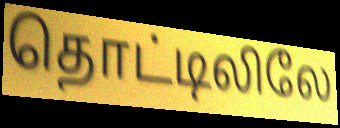
தொட்டிலிலே